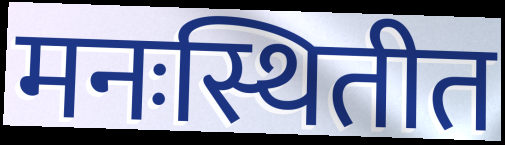
मनःस्थितीत